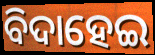
ବିଦାହେଇ